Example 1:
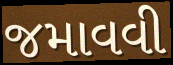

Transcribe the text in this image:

જમાવવી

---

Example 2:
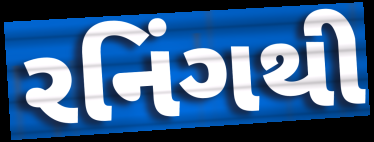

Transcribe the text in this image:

રનિંગથી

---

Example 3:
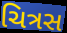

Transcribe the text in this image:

ચિત્રસ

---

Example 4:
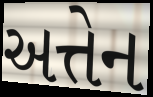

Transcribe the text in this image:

અત્તેન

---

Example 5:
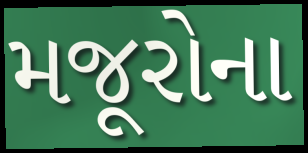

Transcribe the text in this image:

મજૂરોના